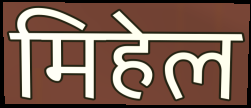
मिहेल